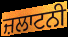
ਜ਼ਲਾਟਨੀ